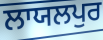
ਲਾਯਲਪੁਰ